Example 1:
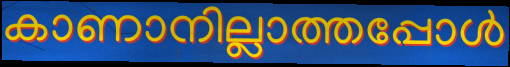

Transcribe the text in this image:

കാണാനില്ലാത്തപ്പോൾ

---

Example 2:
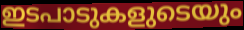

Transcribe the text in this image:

ഇടപാടുകളുടെയും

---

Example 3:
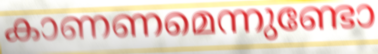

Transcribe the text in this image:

കാണണമെന്നുണ്ടോ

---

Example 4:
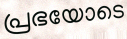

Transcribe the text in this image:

പ്രഭയോടെ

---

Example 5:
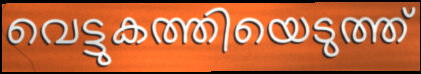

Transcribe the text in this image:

വെട്ടുകത്തിയെടുത്ത്